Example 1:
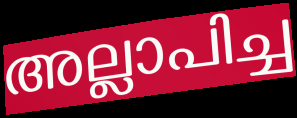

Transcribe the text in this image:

അല്ലാപിച്ച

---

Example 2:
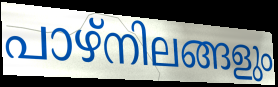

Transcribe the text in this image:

പാഴ്നിലങ്ങളും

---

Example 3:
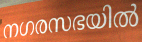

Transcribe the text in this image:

നഗരസഭയിൽ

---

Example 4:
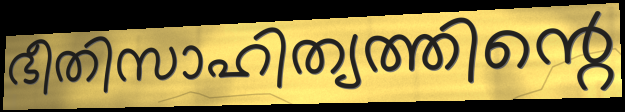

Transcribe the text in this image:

ഭീതിസാഹിത്യത്തിന്റെ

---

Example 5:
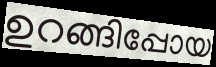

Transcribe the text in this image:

ഉറങ്ങിപ്പോയ